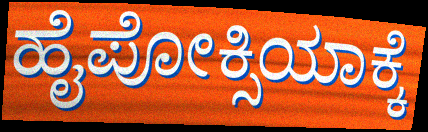
ಹೈಪೋಕ್ಸಿಯಾಕ್ಕೆ